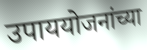
उपाययोजनांच्या